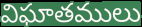
విఘాతములు